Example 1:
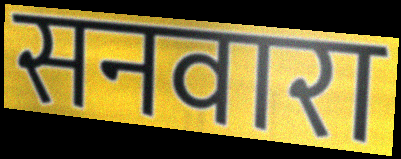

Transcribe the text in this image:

सनवारा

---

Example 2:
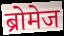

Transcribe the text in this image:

ब्रोमेज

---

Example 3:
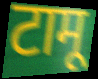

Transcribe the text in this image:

टामू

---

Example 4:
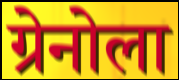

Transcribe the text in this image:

ग्रेनोला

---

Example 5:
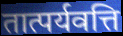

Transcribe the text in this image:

तात्पर्यवत्ति